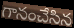
గానంచేసిన